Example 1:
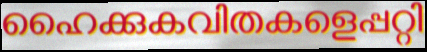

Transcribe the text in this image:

ഹൈക്കുകവിതകളെപ്പറ്റി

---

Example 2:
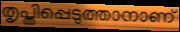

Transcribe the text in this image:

തൃപ്തിപ്പെടുത്താനാണ്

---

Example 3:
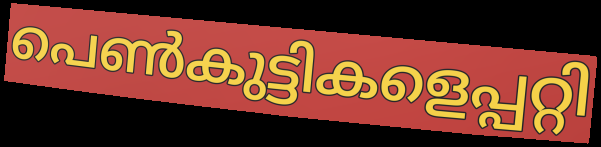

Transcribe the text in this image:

പെൺകുട്ടികളെപ്പറ്റി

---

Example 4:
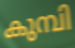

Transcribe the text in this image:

കുമ്പി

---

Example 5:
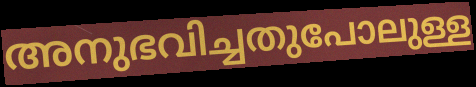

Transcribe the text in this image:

അനുഭവിച്ചതുപോലുള്ള